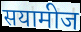
सयामीज